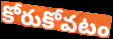
కోరుకోవటం